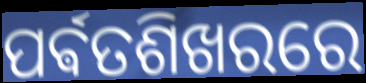
ପର୍ଵତଶିଖରରେ